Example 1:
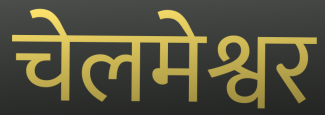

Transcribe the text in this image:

चेलमेश्वर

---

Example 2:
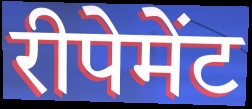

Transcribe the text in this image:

रीपेमेंट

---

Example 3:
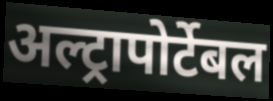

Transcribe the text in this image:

अल्ट्रापोर्टेबल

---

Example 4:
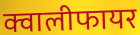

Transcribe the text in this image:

क्वालीफायर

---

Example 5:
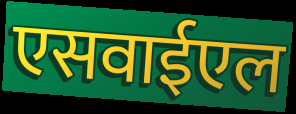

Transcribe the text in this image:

एसवाईएल